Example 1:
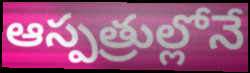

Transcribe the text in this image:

ఆస్పత్రుల్లోనే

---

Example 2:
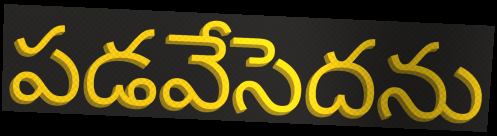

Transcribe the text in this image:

పడవేసెదను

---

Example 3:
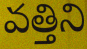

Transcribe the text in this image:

వత్తిని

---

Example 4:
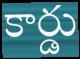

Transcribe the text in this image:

కార్డు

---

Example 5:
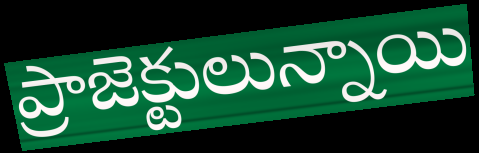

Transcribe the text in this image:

ప్రాజెక్టులున్నాయి